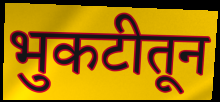
भुकटीतून